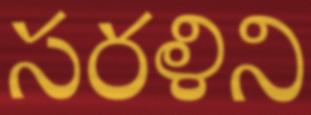
సరళిని